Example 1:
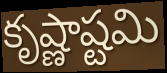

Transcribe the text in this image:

కృష్ణాష్టమి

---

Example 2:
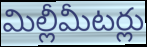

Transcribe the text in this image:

మిల్లీమీటర్లు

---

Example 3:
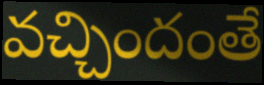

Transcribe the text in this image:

వచ్చిందంతే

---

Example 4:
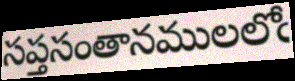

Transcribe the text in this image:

సప్తసంతానములలోఁ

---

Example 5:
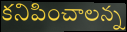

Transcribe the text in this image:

కనిపించాలన్న